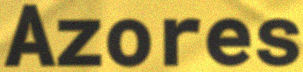
Azores